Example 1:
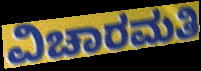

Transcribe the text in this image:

ವಿಚಾರಮತಿ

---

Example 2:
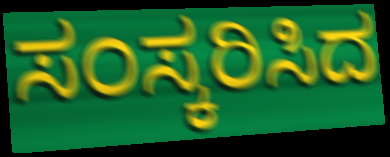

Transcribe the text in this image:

ಸಂಸ್ಕರಿಸಿದ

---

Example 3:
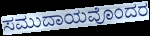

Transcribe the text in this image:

ಸಮುದಾಯವೊಂದರ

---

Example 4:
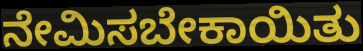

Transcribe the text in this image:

ನೇಮಿಸಬೇಕಾಯಿತು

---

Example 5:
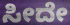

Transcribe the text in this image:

ಸೀದೇ